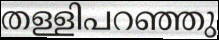
തള്ളിപറഞ്ഞു